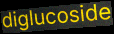
diglucoside